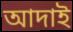
আদাই